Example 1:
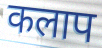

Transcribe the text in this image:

कलाप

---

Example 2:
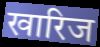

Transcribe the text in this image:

खारिज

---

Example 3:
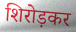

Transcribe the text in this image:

शिरोड़कर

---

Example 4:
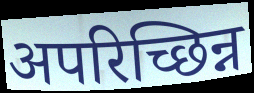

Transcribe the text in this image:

अपरिच्छिन्न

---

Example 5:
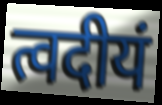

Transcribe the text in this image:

त्वदीयं